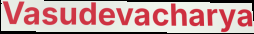
Vasudevacharya